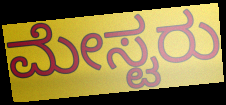
ಮೇಸ್ಟರು